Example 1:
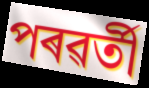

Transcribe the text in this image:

পৰৱৰ্তী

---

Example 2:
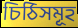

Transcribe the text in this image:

চিঠিসমূহ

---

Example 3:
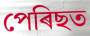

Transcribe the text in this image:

পেৰিছত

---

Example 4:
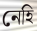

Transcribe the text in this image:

নেহি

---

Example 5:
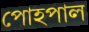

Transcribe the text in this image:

পোহপাল